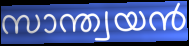
സാന്ത്വയൻ